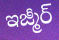
ఇజ్మీర్